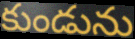
కుండును